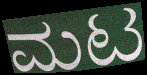
ಮಟ